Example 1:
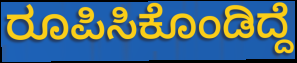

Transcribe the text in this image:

ರೂಪಿಸಿಕೊಂಡಿದ್ದೆ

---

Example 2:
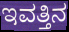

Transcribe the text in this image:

ಇವತ್ತಿನ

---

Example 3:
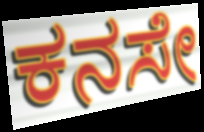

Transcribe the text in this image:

ಕನಸೇ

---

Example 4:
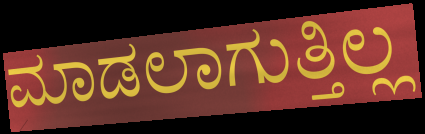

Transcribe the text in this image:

ಮಾಡಲಾಗುತ್ತಿಲ್ಲ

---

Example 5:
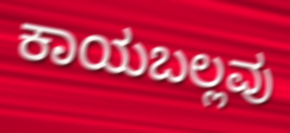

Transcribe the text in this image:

ಕಾಯಬಲ್ಲವು